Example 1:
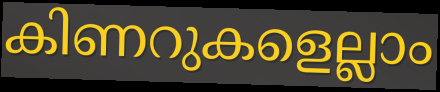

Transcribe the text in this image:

കിണറുകളെല്ലാം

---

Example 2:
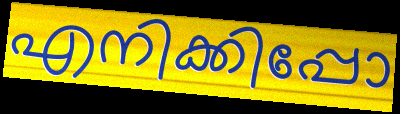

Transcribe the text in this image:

എനിക്കിപ്പോ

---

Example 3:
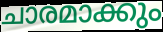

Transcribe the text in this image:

ചാരമാക്കും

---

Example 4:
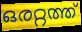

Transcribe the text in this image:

ഒരറ്റത്ത്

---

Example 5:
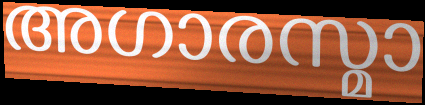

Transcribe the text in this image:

അഗാരസ്മാ